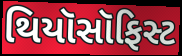
થિયૉસૉફિસ્ટ